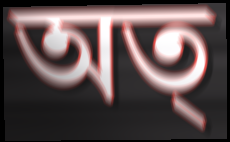
অত্